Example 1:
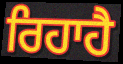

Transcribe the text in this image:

ਰਿਹਾਹੈ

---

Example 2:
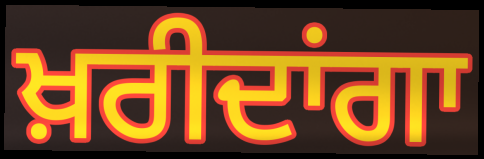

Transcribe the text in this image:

ਖ਼ਰੀਦਾਂਗਾ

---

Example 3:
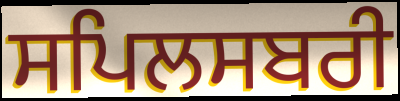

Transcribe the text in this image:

ਸਪਿਲਸਬਰੀ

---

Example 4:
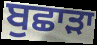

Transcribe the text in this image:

ਬੁਛਾੜਾ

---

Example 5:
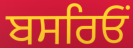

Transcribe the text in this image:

ਬਸਰਿਓਂ